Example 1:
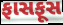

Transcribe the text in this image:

ફાસફૂસ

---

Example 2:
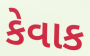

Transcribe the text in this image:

કેવાક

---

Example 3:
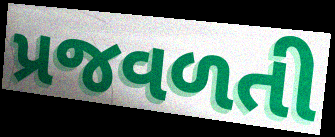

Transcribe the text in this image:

પ્રજવળતી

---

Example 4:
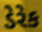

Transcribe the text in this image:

ડેરેક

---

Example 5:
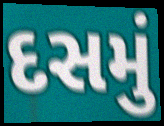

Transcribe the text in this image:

દસમું